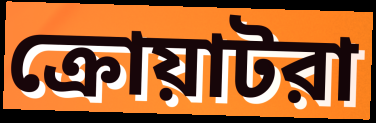
ক্রোয়াটরা